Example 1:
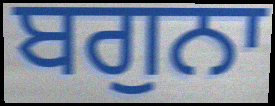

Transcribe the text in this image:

ਬਗੁਨਾ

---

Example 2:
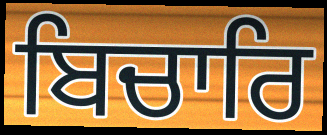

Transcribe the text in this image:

ਬਿਚਾਰਿ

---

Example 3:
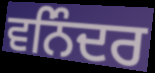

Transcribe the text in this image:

ਵਨਿੰਦਰ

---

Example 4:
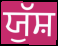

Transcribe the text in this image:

ਯੁੱਸ਼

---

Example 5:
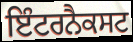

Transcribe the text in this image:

ਇੰਟਰਨੈਕਸਟ